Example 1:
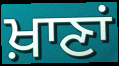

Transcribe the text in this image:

ਖ਼ਾਣਾਂ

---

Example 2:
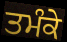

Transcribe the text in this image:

ਤਮੰਕੇ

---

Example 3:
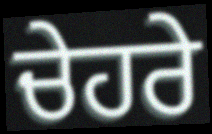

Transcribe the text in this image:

ਚੇਹਰੇ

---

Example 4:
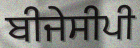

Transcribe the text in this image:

ਬੀਜੇਸੀਪੀ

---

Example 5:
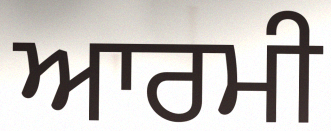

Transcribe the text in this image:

ਆਰਮੀ